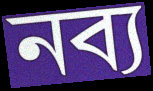
নব্য